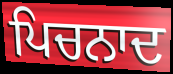
ਪਿਚਨਾਦ